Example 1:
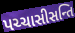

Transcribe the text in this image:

પચ્ચાસીસન્તિ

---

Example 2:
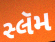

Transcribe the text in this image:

સ્લૅમ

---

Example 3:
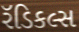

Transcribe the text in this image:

રૅડિકલ્સ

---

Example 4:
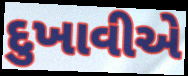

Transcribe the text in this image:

દુખાવીએ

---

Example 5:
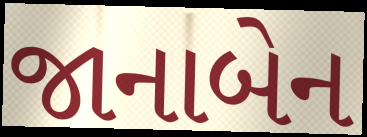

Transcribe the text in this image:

જાનાબેન